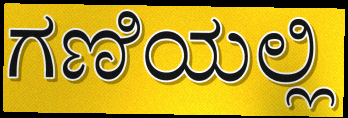
ಗಣಿಯಲ್ಲಿ